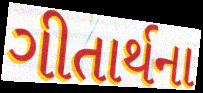
ગીતાર્થના